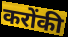
करोंकी